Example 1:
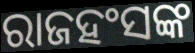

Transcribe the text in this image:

ରାଜହଂସଙ୍କ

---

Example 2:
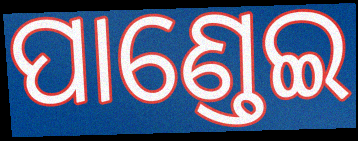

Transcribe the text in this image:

ପାଣ୍ଡେଇ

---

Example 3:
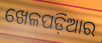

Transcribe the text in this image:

ଖେଳପଡ଼ିଆର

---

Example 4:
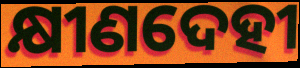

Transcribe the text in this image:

କ୍ଷୀଣଦେହୀ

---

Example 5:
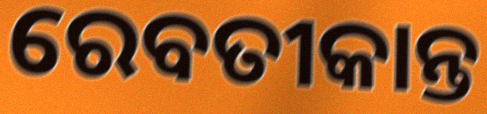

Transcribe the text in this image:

ରେବତୀକାନ୍ତ